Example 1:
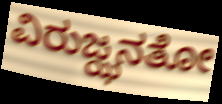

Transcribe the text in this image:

ವಿರುಜ್ಝನತೋ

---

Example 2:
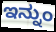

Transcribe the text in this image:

ಇನ್ನುಂ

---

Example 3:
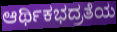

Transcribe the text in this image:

ಆರ್ಥಿಕಭದ್ರತೆಯ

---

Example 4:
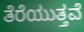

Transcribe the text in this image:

ತೆರೆಯುತ್ತವೆ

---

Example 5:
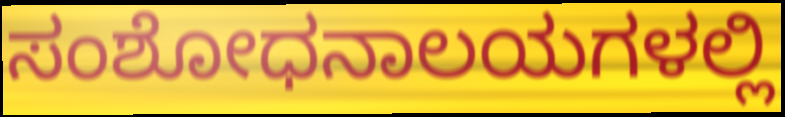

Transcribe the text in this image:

ಸಂಶೋಧನಾಲಯಗಳಲ್ಲಿ